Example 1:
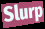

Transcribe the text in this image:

Slurp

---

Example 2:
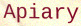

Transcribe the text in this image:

Apiary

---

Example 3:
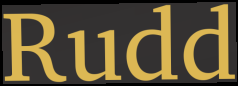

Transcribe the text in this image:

Rudd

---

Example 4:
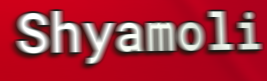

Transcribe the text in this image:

Shyamoli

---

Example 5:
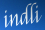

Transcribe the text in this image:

indli